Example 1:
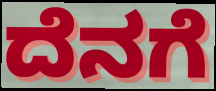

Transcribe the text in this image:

ದೆನಗೆ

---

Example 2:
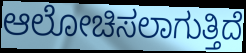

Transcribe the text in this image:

ಆಲೋಚಿಸಲಾಗುತ್ತಿದೆ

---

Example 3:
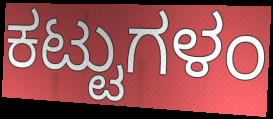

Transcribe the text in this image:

ಕಟ್ಟುಗಳಂ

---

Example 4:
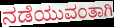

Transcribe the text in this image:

ನಡೆಯುವಂತಾಗಿ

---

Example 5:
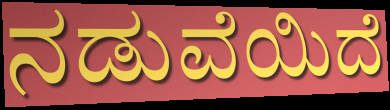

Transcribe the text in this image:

ನಡುವೆಯಿದೆ